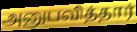
அனுபவித்தார்